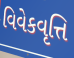
વિવેકવૃત્તિ